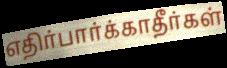
எதிர்பார்க்காதீர்கள்